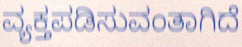
ವ್ಯಕ್ತಪಡಿಸುವಂತಾಗಿದೆ